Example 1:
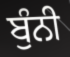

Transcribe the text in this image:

ਬੁੰਨੀ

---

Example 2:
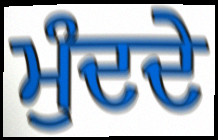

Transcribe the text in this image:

ਮੁੰਦਦੇ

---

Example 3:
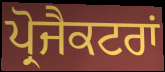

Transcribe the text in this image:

ਪ੍ਰੋਜੈਕਟਰਾਂ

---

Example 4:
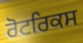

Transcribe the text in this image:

ਰੋਟਰਿਕਸ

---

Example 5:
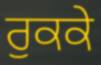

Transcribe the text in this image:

ਰੁਕਕੇ